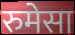
रुमेसा